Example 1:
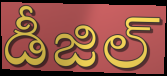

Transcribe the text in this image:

డీజిల్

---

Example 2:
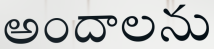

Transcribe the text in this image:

అందాలను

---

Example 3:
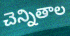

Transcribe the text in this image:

చెన్నితాల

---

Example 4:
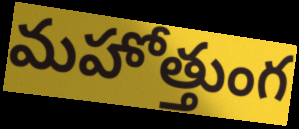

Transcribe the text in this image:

మహోత్తుంగ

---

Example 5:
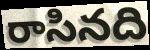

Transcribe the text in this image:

రాసినది